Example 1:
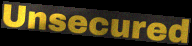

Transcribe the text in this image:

Unsecured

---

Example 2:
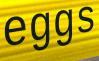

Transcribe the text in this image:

eggs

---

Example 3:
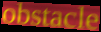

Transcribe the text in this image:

obstacle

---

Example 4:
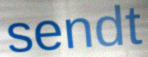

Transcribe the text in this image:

sendt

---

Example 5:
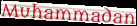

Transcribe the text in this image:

Muhammadan